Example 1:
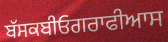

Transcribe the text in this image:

ਬੱਸਕਬੀਓਗਰਾਫੀਆਸ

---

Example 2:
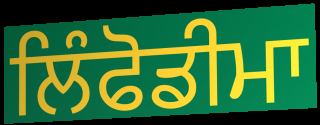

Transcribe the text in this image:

ਲਿੰਫੋਡੀਮਾ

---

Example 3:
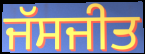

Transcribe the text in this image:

ਜੱਸਜੀਤ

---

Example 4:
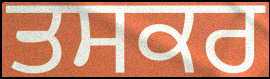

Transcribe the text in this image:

ਤਸਕਰ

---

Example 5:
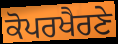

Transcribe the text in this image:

ਕੋਪਰਖੈਰਣੇ